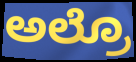
ಅಲ್ರೊ